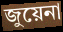
জুয়েনা